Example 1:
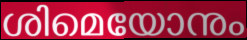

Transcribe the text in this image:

ശിമെയോനും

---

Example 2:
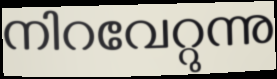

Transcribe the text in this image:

നിറവേറ്റുന്നു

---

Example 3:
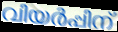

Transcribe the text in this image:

വിയർപ്പിന്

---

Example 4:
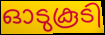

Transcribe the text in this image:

ഓടുകൂടി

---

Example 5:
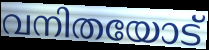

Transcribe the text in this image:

വനിതയോട്